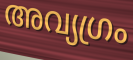
അവ്യഗ്രം